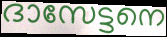
ദാസേട്ടനെ